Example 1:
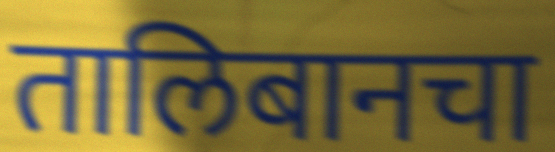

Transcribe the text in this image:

तालिबानचा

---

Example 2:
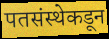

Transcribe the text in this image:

पतसंस्थेकडून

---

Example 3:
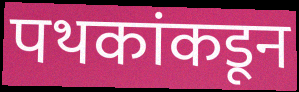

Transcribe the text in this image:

पथकांकडून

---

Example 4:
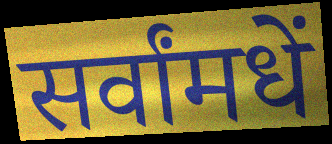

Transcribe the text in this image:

सर्वांमधें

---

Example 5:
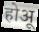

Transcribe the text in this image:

होअू